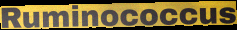
Ruminococcus